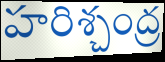
హరిశ్చంద్ర